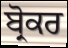
ਬ੍ਰੋਕਰ